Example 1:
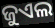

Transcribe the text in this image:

ଜୁଏଲ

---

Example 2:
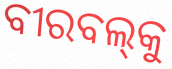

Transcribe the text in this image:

ବୀରବଲ୍‌କୁ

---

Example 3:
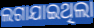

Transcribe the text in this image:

ଲଗାଯାଇଥିଲା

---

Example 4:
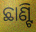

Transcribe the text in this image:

ଛାଣ୍ଟି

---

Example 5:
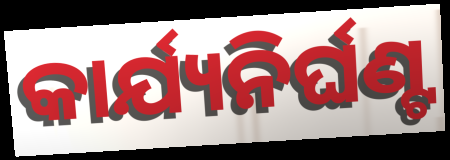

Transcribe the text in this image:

କାର୍ଯ୍ୟନିର୍ଘଣ୍ଟ